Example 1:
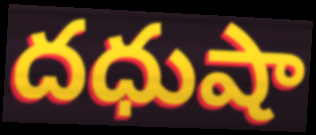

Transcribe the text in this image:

దధుషా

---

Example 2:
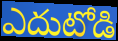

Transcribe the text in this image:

ఎదుటోడి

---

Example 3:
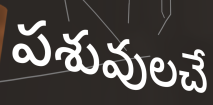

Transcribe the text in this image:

పశువులచే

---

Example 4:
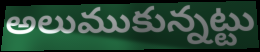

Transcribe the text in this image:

అలుముకున్నట్టు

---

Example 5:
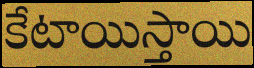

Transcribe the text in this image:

కేటాయిస్తాయి